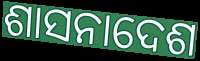
ଶାସନାଦେଶ